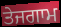
ਤੇਜਗਾਮ